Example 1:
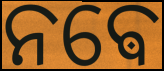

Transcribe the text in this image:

ନଵେ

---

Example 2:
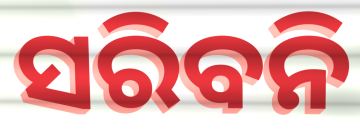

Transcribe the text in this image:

ସରିବନି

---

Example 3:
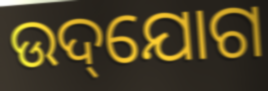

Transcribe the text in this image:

ଉଦ୍‌ଯୋଗ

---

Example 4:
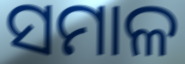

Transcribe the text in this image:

ସମାଳ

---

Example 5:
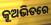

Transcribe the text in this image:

କୂଅଭିତରେ